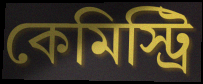
কেমিস্ট্রি